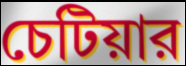
চেটিয়ার